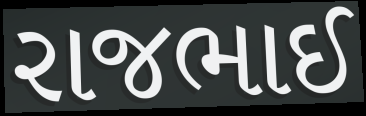
રાજભાઈ